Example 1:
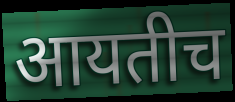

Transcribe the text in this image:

आयतीच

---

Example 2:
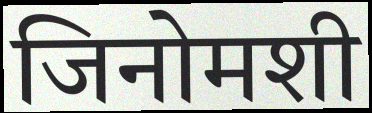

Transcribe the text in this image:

जिनोमशी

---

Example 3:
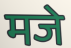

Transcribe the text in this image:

मजे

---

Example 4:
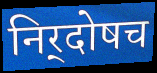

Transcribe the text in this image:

निर्दोषच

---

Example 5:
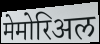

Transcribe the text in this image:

मेमोरिअल